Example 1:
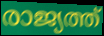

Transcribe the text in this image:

രാജ്യത്ത്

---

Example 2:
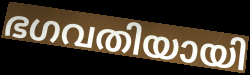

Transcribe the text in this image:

ഭഗവതിയായി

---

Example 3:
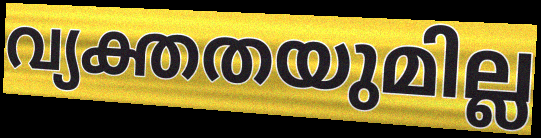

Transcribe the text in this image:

വ്യക്തതയുമില്ല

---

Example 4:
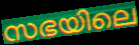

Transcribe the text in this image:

സഭയിലെ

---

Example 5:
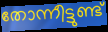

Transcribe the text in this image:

തോന്നീട്ടുണ്ട്